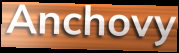
Anchovy